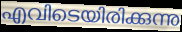
എവിടെയിരിക്കുന്നു